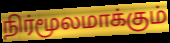
நிர்மூலமாக்கும்